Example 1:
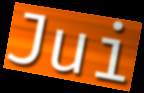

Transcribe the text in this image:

Jui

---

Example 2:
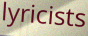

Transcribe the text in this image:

lyricists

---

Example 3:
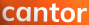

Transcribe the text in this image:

cantor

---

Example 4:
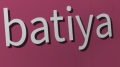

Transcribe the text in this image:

batiya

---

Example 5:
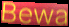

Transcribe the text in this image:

Bewa